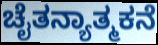
ಚೈತನ್ಯಾತ್ಮಕನೆ